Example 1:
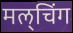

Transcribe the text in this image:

मल्चिंग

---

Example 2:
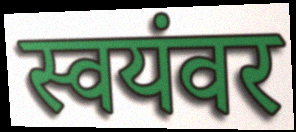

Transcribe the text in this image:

स्वयंवर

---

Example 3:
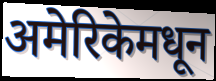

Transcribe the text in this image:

अमेरिकेमधून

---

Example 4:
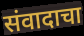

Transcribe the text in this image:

संवादाचा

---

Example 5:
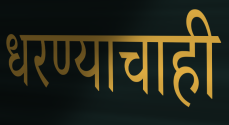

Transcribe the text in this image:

धरण्याचाही